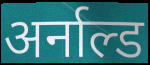
अर्नाल्ड